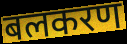
बलकरण